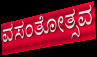
ವಸಂತೋತ್ಸವ